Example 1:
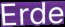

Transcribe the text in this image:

Erde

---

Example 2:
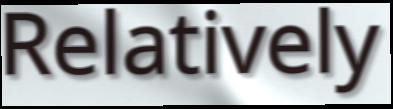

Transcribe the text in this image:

Relatively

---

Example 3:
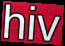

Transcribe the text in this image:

hiv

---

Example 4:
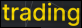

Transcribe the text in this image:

trading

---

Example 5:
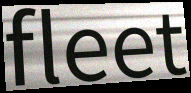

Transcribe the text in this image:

fleet